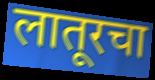
लातूरचा